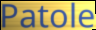
Patole